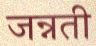
जन्नती